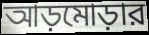
আড়মোড়ার